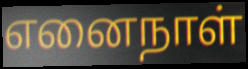
எனைநாள்